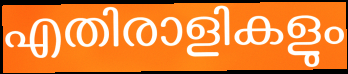
എതിരാളികളും